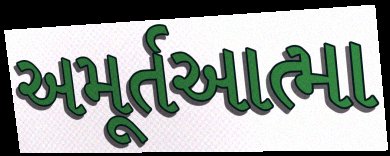
અમૂર્તઆત્મા